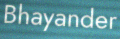
Bhayander